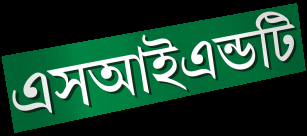
এসআইএন্ডটি